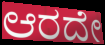
ಆರದೇ